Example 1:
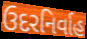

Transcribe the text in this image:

ઉદરનિર્વાહ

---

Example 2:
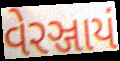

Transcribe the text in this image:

વેરઞ્જાયં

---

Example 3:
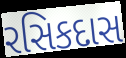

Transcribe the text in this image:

રસિકદાસ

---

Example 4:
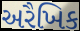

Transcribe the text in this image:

અરૈખિક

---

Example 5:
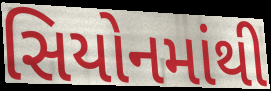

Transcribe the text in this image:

સિયોનમાંથી